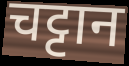
चट्टान